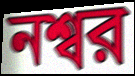
নশ্বর